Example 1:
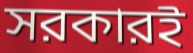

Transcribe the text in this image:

সরকারই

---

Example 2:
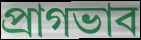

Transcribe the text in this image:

প্রাগভাব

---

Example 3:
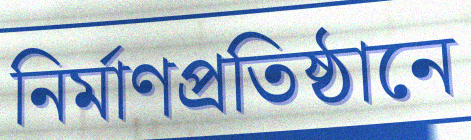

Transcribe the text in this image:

নির্মাণপ্রতিষ্ঠানে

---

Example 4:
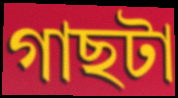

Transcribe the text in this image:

গাছটা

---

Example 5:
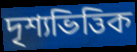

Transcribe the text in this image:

দৃশ্যভিত্তিক